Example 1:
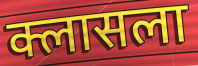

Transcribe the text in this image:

क्लासला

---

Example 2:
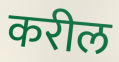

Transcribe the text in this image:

करील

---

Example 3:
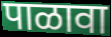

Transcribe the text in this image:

पाळावा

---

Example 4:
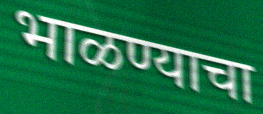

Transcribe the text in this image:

भाळण्याचा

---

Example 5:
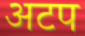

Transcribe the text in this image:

अटप